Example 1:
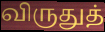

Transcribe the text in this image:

விருதுத்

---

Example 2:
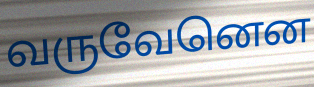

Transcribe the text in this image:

வருவேனென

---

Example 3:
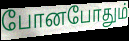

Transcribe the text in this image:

போனபோதும்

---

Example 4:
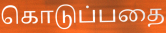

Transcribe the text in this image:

கொடுப்பதை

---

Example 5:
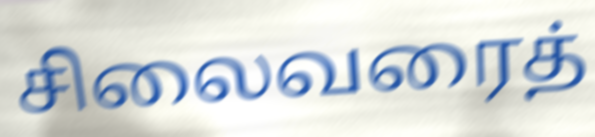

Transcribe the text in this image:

சிலைவரைத்